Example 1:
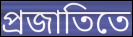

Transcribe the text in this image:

প্রজাতিতে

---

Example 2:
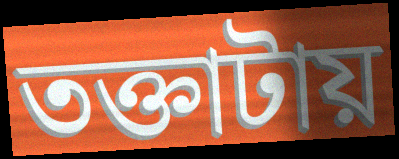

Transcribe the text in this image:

তক্তাটায়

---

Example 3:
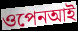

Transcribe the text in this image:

ওপেনআই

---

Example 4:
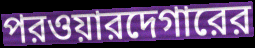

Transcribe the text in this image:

পরওয়ারদেগারের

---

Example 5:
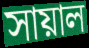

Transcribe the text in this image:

সায়াল